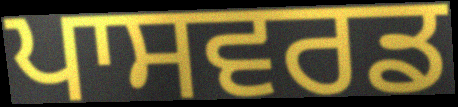
ਪਾਸਵਰਡ